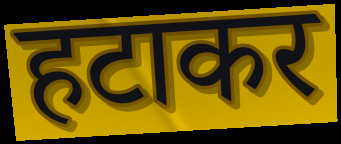
हटाकर